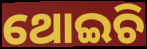
ଥୋଇଚି